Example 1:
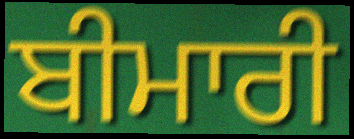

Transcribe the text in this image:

ਬੀਮਾਰੀ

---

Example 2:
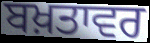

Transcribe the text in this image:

ਬਖ਼ਤਾਵਰ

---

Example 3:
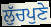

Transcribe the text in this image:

ਲੁੱਚਪੁਣੇ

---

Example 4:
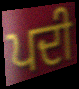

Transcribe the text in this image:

ਪਦੀ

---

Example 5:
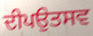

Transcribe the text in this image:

ਦੀਪਉਤਸਵ